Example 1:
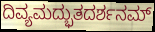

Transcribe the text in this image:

ದಿವ್ಯಮದ್ಭುತದರ್ಶನಮ್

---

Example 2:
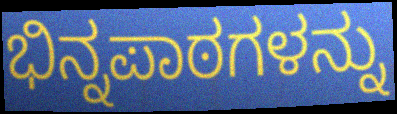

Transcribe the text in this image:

ಭಿನ್ನಪಾಠಗಳನ್ನು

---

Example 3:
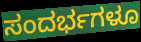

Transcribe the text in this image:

ಸಂದರ್ಭಗಳೂ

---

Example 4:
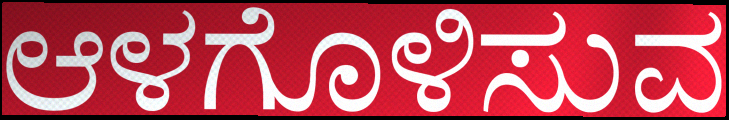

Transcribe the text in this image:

ಆಳಗೊಳಿಸುವ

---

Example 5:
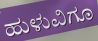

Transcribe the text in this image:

ಹುಳುವಿಗೂ